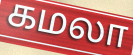
கமலா